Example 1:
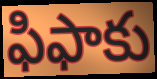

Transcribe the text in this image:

ఫిఫాకు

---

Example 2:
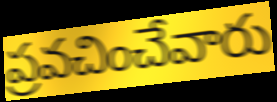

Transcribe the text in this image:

ప్రవచించేవారు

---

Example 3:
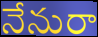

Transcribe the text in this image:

నేనురా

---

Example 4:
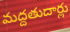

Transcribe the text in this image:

మద్దతుదార్లు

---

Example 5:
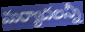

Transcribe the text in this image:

మర్యాదలన్నీ